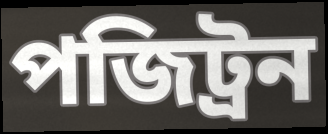
পজিট্রন